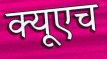
क्यूएच